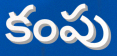
కంపు